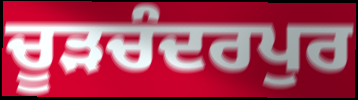
ਚੂੜਚੰਦਰਪੁਰ